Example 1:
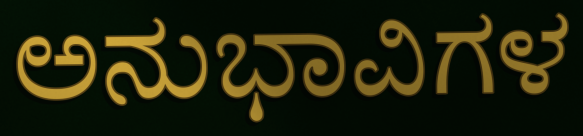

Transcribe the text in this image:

ಅನುಭಾವಿಗಳ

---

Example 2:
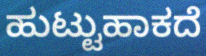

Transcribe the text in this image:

ಹುಟ್ಟುಹಾಕದೆ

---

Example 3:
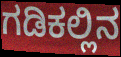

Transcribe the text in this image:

ಗಡಿಕಲ್ಲಿನ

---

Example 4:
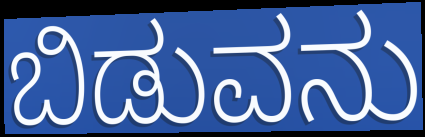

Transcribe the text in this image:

ಬಿಡುವನು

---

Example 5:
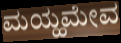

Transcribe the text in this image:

ಮಯ್ಹಮೇವ